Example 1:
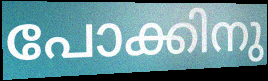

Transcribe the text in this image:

പോക്കിനു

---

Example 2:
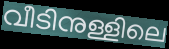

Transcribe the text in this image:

വീടിനുള്ളിലെ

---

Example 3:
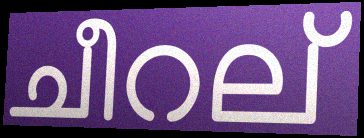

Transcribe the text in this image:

ചീറല്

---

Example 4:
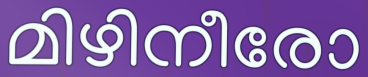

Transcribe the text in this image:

മിഴിനീരോ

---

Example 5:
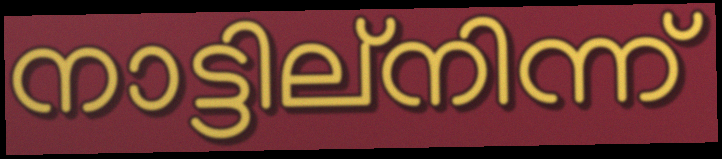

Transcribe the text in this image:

നാട്ടില്നിന്ന്